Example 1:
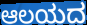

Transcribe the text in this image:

ಆಲಯದ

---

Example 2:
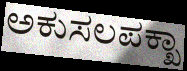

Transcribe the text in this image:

ಅಕುಸಲಪಕ್ಖಾ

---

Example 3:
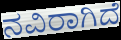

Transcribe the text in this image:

ನವಿರಾಗಿದೆ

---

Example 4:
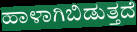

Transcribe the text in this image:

ಹಾಳಾಗಿಬಿಡುತ್ತದೆ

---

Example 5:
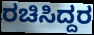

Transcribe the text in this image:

ರಚಿಸಿದ್ದರ